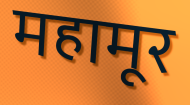
महामूर